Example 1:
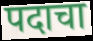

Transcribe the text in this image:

पदाचा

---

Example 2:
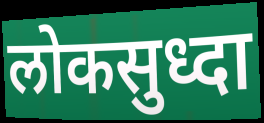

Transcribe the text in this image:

लोकसुध्दा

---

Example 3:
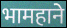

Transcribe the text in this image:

भामहाने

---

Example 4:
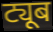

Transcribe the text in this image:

ट्यूब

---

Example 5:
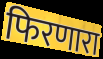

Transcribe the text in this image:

फिरणारा